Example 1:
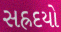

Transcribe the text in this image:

સહ્રદયો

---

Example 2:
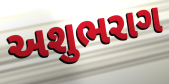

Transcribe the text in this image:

અશુભરાગ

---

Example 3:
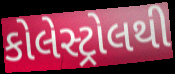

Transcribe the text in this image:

કોલેસ્ટ્રોલથી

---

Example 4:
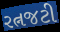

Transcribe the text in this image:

રત્નજટી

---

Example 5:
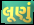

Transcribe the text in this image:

લૂણું